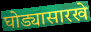
घोड्यासारखे